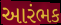
આરંભક